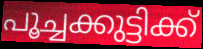
പൂച്ചക്കുട്ടിക്ക്